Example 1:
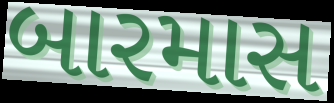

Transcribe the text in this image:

બારમાસ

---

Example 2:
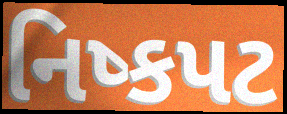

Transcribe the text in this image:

નિષ્કપટ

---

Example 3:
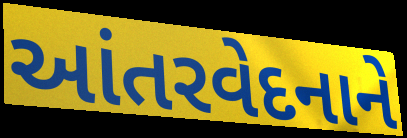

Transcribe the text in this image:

આંતરવેદનાને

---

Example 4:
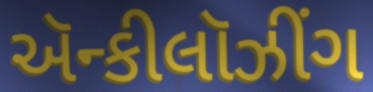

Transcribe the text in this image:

ઍન્કીલૉઝીંગ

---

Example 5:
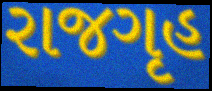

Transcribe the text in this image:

રાજગૃહ